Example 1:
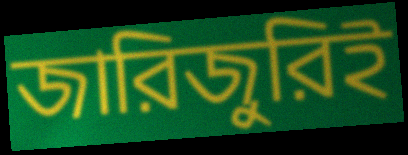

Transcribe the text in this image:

জারিজুরিই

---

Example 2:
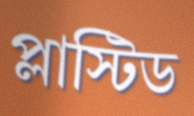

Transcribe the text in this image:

প্লাস্টিড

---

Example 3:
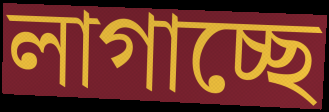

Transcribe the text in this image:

লাগাচ্ছে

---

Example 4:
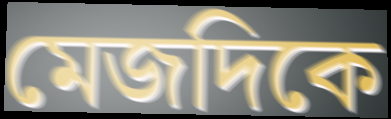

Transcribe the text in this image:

মেজদিকে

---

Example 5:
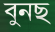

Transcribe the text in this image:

বুনছ